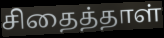
சிதைத்தாள்